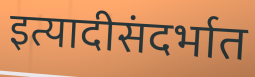
इत्यादीसंदर्भात